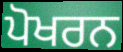
ਪੋਖਰਨ